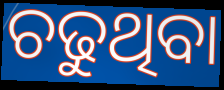
ଚଢୁଥିବା